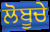
ਲੋਬੂਚੇ